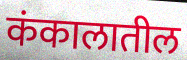
कंकालातील